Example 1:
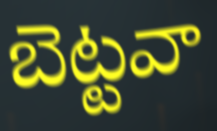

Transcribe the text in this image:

బెట్టవా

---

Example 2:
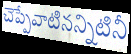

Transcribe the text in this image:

చెప్పేవాటినన్నిటినీ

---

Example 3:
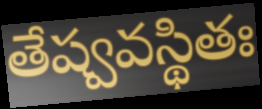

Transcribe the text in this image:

తేష్వవస్థితః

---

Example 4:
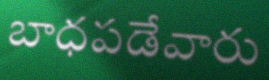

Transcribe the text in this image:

బాధపడేవారు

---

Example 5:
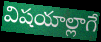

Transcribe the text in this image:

విషయాల్లాగే